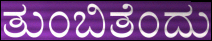
ತುಂಬಿತೆಂದು